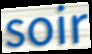
soir